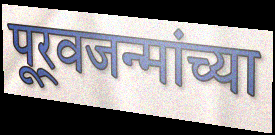
पूर्वजन्मांच्या